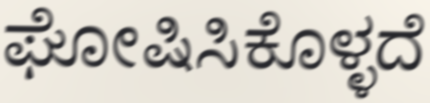
ಘೋಷಿಸಿಕೊಳ್ಳದೆ